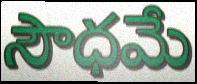
సౌధమే